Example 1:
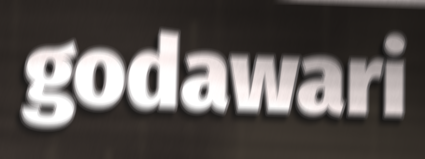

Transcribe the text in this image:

godawari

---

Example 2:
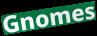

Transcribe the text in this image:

Gnomes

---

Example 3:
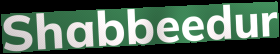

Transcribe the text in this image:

Shabbeedur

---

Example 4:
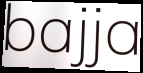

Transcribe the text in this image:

bajja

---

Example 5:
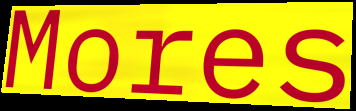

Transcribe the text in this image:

Mores